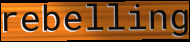
rebelling